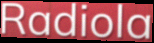
Radiola